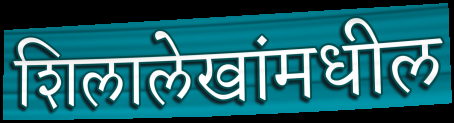
शिलालेखांमधील